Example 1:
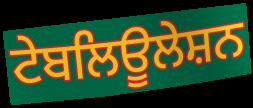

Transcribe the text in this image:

ਟੇਬਲਿਊਲੇਸ਼ਨ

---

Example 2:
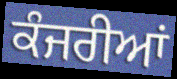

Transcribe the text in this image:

ਕੰਜਰੀਆਂ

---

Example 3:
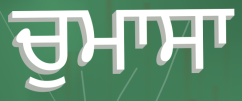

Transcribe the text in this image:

ਚੁਮਾਸਾ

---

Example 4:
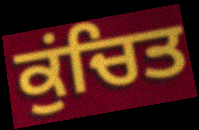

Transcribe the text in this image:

ਕੁਂਚਿਤ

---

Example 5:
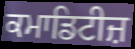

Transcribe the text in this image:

ਕਮਾਡਿਟੀਜ਼